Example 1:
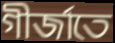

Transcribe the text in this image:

গীর্জাতে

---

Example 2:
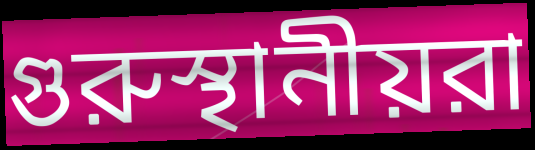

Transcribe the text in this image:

গুরুস্থানীয়রা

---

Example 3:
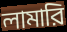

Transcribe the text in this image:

লামারি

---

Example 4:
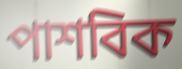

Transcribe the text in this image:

পাশবিক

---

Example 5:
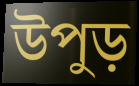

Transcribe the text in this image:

উপুড়